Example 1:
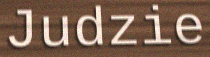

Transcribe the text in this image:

Judzie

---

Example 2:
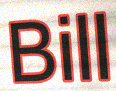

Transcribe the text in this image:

Bill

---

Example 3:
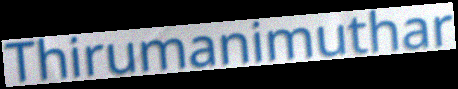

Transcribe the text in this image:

Thirumanimuthar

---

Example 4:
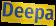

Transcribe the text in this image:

Deepa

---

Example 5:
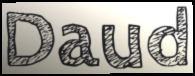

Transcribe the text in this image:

Daud